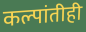
कल्पांतीही